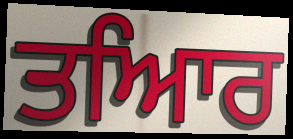
ਤਆਿਰ